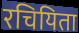
रचियिता